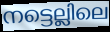
നട്ടെല്ലിലെ